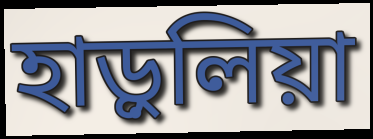
হাড়ুলিয়া